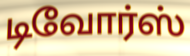
டிவோர்ஸ்